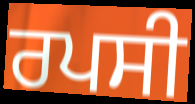
ਰਪਸੀ